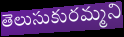
తెలుసుకురమ్మని